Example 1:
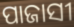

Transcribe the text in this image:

ପାଜାସୀ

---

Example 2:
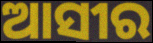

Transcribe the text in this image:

ଆସୀର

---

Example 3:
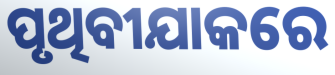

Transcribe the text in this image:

ପୃଥିବୀଯାକରେ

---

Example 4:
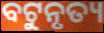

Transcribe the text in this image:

ବଟୁନୃତ୍ୟ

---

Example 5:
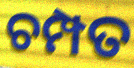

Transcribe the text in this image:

ଚମ୍ପତ